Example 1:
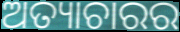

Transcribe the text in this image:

ଅତ୍ୟାଚାରର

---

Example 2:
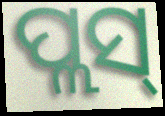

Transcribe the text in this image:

ପ୍ଲସ୍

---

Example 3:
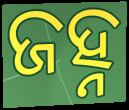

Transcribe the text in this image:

ଜହ୍ନ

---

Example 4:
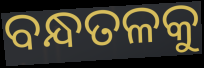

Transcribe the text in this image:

ବନ୍ଧତଳକୁ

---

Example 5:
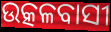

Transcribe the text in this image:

ଉତ୍କଳବାସୀ